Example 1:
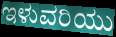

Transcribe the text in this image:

ಇಳುವರಿಯು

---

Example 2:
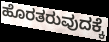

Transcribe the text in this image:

ಹೊರತರುವುದಕ್ಕೆ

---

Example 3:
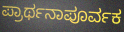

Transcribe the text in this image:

ಪ್ರಾರ್ಥನಾಪೂರ್ವಕ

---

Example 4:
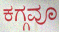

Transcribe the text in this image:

ಕಗ್ಗವೂ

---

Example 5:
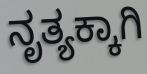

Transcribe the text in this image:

ನೃತ್ಯಕ್ಕಾಗಿ